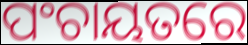
ପଂଚାୟତରେ